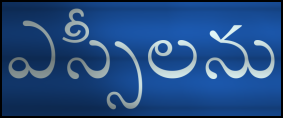
ఎస్సీలను